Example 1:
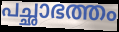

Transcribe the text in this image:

പച്ഛാഭത്തം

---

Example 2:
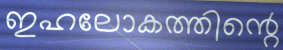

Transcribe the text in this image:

ഇഹലോകത്തിന്റെ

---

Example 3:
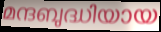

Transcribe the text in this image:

മന്ദബുദ്ധിയായ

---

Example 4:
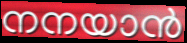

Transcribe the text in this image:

നനയാൻ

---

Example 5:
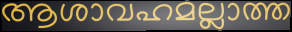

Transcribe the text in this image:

ആശാവഹമല്ലാത്ത